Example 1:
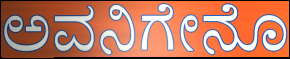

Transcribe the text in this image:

ಅವನಿಗೇನೊ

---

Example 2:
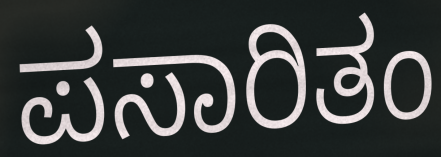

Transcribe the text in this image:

ಪಸಾರಿತಂ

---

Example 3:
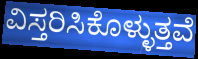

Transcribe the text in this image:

ವಿಸ್ತರಿಸಿಕೊಳ್ಳುತ್ತವೆ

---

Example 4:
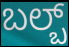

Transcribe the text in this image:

ಬಲ್ಬ್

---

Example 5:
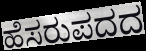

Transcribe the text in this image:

ಹೆಸರುಪದದ